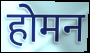
होमन